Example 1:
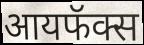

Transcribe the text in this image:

आयफॅक्स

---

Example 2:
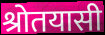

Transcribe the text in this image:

श्रोतयासी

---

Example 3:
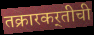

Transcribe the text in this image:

तक्रारकर्तीची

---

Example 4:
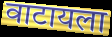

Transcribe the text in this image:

वाटायला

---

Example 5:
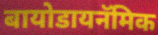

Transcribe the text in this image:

बायोडायनॅमिक